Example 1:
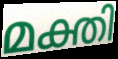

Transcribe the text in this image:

മക്തി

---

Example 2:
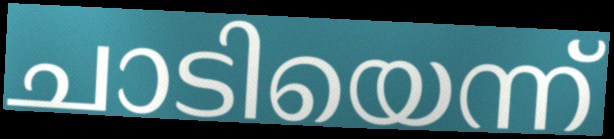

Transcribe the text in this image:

ചാടിയെന്ന്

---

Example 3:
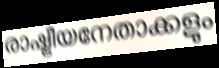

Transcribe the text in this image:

രാഷ്ട്രീയനേതാക്കളും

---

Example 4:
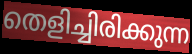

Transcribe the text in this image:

തെളിച്ചിരിക്കുന്ന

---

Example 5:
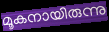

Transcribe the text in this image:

മൂകനായിരുന്നു